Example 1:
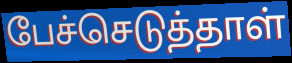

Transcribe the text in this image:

பேச்செடுத்தாள்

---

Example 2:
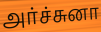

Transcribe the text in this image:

அர்ச்சுனா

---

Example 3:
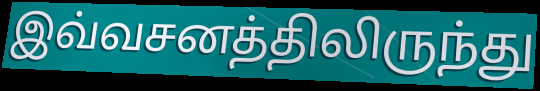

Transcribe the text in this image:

இவ்வசனத்திலிருந்து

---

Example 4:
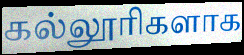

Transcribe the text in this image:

கல்லூரிகளாக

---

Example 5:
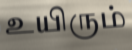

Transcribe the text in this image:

உயிரும்